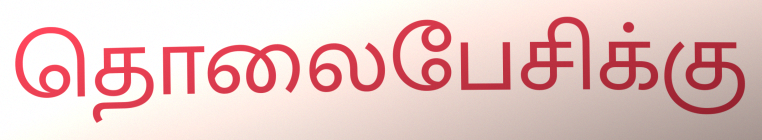
தொலைபேசிக்கு